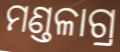
ମଣ୍ଡଳାଗ୍ର